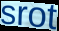
srot